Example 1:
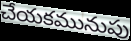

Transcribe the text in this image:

చేయకమునుపు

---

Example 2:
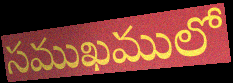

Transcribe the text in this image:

సముఖములో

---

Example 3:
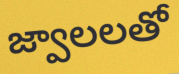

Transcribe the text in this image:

జ్వాలలతో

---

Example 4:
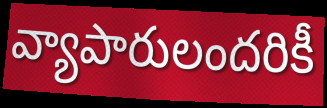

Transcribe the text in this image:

వ్యాపారులందరికీ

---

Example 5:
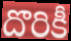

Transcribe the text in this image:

దొరికీ